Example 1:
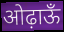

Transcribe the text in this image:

ओढ़ाऊँ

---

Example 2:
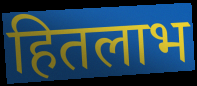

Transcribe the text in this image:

हितलाभ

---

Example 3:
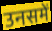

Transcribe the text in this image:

उनसमें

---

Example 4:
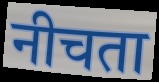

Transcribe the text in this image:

नीचता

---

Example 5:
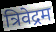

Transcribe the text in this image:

त्रिवेद्रम